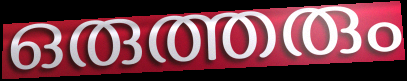
ഒരുത്തരും